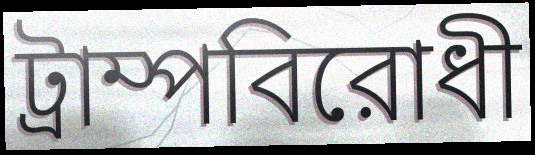
ট্রাম্পবিরোধী